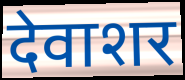
देवाशर